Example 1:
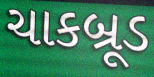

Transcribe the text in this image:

ચાકબ્રૂડ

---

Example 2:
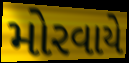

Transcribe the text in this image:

મોરવાયે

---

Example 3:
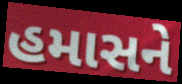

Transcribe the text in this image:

હમાસને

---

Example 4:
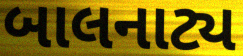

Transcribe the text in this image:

બાલનાટ્ય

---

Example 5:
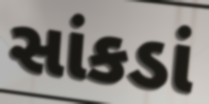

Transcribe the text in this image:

સાંકડાં